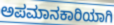
ಅಪಮಾನಕಾರಿಯಾಗಿ